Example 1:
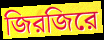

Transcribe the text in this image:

জিরজিরে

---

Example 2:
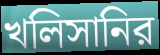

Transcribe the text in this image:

খলিসানির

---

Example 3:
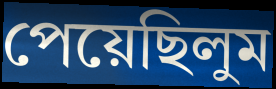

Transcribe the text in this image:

পেয়েছিলুম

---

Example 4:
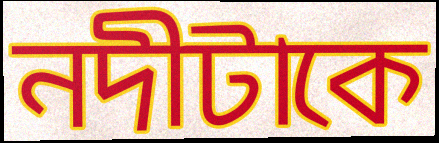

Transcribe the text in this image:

নদীটাকে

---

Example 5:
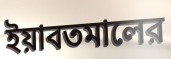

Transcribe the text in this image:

ইয়াবতমালের